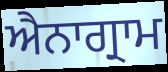
ਐਨਾਗ੍ਰਾਮ